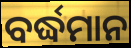
ବର୍ଦ୍ଧମାନ